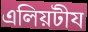
এলিয়টীয